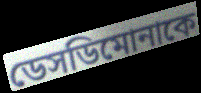
ডেসডিমোনাকে